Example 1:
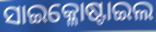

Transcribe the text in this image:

ସାଇକ୍ଳୋଷ୍ଟାଇଲ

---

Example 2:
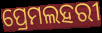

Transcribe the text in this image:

ପ୍ରେମଲହରୀ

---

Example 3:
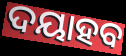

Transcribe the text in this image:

ଦୟାହବ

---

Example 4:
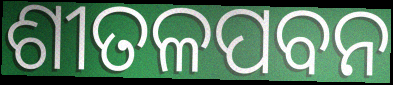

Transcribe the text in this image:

ଶୀତଳପବନ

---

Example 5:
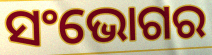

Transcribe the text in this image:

ସଂଭୋଗର